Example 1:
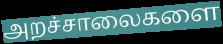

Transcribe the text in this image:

அறச்சாலைகளை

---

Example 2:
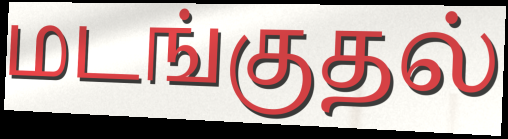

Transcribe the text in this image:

மடங்குதல்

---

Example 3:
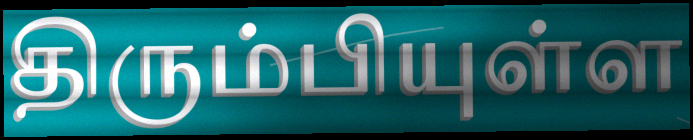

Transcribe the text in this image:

திரும்பியுள்ள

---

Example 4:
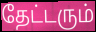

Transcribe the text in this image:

தேட்டரும்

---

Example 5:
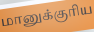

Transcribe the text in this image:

மானுக்குரிய